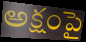
అక్షంపై